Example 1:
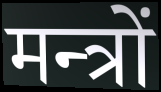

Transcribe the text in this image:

मन्त्रों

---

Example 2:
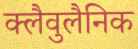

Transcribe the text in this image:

क्लैवुलैनिक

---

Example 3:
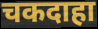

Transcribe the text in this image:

चकदाहा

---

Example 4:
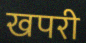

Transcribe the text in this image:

खपरी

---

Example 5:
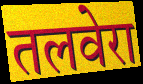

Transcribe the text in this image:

तलवेरा